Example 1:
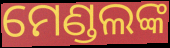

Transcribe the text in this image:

ମେଣ୍ଡଲଙ୍କ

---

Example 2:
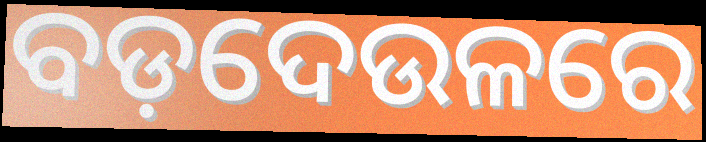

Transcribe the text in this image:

ବଡ଼ଦେଉଳରେ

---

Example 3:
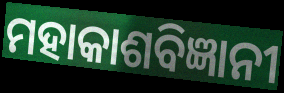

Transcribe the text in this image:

ମହାକାଶବିଜ୍ଞାନୀ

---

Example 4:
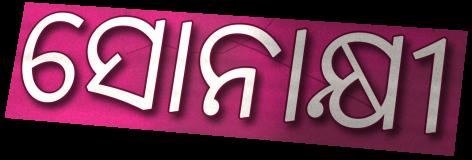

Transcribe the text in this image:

ସୋନାକ୍ଷୀ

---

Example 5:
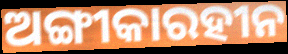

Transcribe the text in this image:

ଅଙ୍ଗୀକାରହୀନ